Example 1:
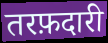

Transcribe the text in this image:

तरफ़दारी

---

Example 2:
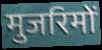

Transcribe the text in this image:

मुजरिमों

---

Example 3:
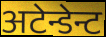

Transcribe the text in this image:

अटेन्डेन्ट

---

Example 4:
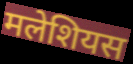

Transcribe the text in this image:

मलेशियस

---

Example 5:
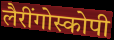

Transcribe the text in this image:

लैरींगोस्कोपी